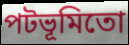
পটভূমিতো